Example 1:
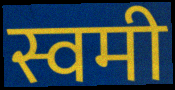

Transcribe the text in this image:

स्वमी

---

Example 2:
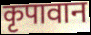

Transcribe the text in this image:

कृपावान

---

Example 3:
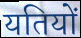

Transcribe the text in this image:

यतियों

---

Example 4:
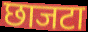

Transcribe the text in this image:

छाजटा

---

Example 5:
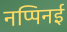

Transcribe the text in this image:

नप्पिनई